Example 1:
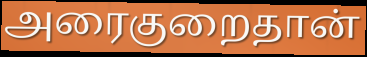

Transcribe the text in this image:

அரைகுறைதான்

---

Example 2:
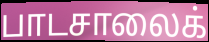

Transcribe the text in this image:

பாடசாலைக்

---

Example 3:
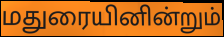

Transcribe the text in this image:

மதுரையினின்றும்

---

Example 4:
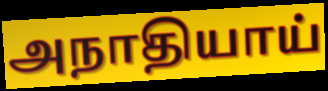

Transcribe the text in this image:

அநாதியாய்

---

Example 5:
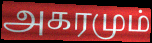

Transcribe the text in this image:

அகரமும்